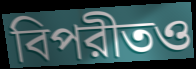
বিপরীতও